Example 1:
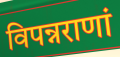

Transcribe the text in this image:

विपन्नराणां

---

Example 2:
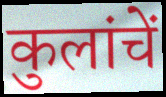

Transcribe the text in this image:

कुलांचें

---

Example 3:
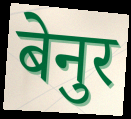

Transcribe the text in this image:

बेनुर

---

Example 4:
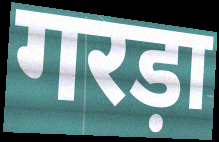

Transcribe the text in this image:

गरड़ा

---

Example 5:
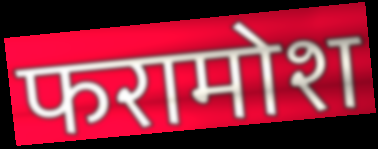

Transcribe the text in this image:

फरामोश